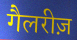
गैलरीज़